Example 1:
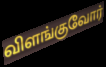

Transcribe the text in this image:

விளங்குவோர்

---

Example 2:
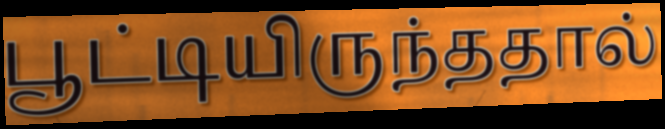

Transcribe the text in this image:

பூட்டியிருந்ததால்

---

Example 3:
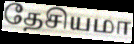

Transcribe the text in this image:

தேசியமா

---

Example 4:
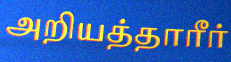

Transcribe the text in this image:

அறியத்தாரீர்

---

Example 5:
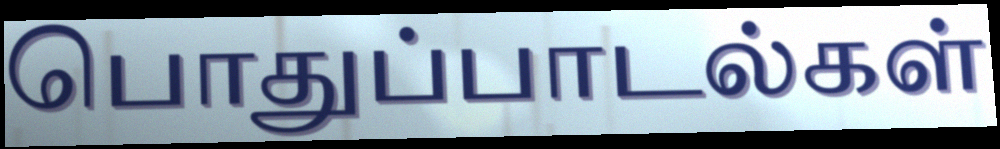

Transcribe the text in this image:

பொதுப்பாடல்கள்